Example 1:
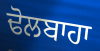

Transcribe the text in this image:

ਢੋਲਬਾਹਾ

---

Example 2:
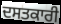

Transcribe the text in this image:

ਦਸਤਕਾਰੀ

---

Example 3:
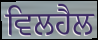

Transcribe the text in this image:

ਵਿਲਹੈਲ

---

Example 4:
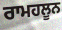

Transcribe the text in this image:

ਰਾਮਹਲੂਨ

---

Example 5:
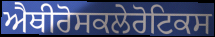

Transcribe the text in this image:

ਐਥੀਰੋਸਕਲੇਰੋਟਿਕਸ